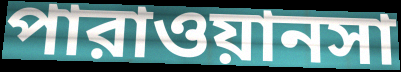
পারাওয়ানসা